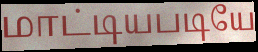
மாட்டியபடியே